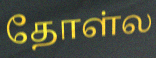
தோள்ல